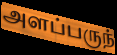
அளப்பருந்